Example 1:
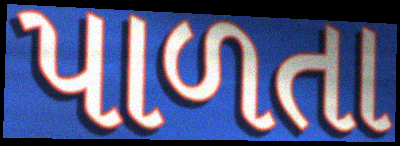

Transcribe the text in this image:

પાળતા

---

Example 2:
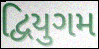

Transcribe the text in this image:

દ્વિયુગમ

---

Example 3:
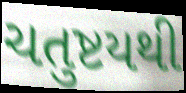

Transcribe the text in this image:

ચતુષ્ટયથી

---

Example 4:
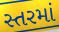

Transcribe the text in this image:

સ્તરમાં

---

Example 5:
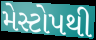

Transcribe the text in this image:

મેસ્ટોપથી